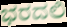
ಭರದಲಿ